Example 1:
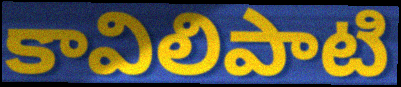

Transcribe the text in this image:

కావిలిపాటి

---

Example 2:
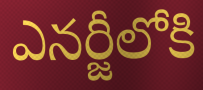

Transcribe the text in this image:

ఎనర్జీలోకి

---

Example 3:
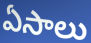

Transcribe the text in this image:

ఏసాలు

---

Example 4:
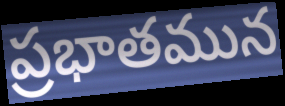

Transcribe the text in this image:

ప్రభాతమున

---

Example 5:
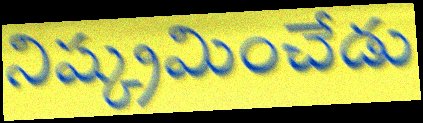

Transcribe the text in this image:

నిష్క్రమించేడు